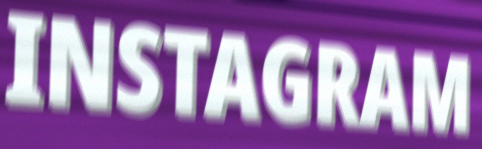
INSTAGRAM